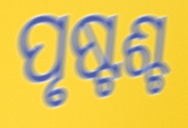
ପୃଷ୍ଟଶ୍ଚ